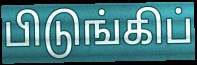
பிடுங்கிப்